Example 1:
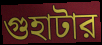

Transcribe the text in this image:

গুহাটার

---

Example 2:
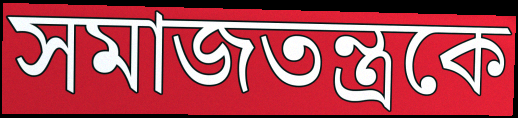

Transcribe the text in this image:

সমাজতন্ত্রকে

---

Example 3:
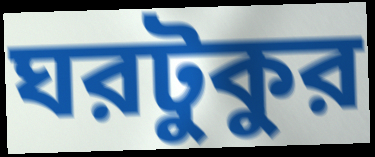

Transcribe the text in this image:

ঘরটুকুর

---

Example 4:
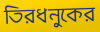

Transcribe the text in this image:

তিরধনুকের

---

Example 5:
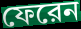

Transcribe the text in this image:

ফেরেন